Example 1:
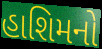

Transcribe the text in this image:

હાશિમનો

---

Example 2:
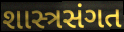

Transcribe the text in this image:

શાસ્ત્રસંગત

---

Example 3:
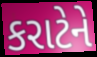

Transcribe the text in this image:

કરાટેને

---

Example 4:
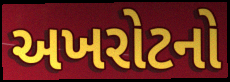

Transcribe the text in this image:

અખરોટનો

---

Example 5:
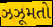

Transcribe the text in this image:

ઝઝૂમતો